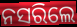
ନସରିଲେ